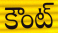
కౌంట్